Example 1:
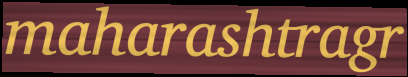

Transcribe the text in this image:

maharashtragr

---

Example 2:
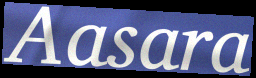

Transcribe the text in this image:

Aasara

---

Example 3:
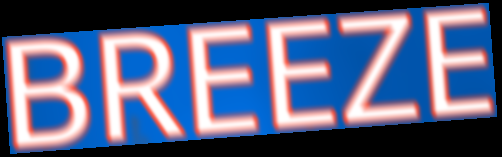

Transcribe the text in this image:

BREEZE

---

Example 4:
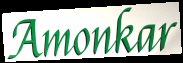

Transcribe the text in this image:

Amonkar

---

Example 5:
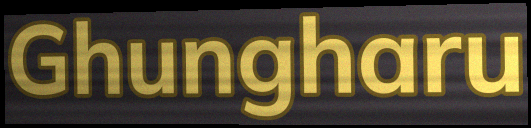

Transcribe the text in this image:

Ghungharu